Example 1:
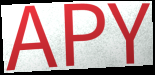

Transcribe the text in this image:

APY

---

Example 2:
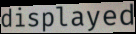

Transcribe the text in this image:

displayed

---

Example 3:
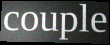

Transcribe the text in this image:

couple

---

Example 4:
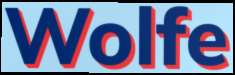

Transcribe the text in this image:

Wolfe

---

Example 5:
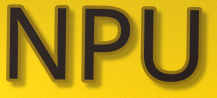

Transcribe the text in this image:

NPU